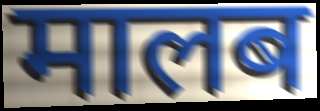
मालब